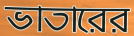
ভাতারের